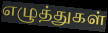
எழுத்துகள்